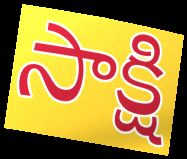
సాక్షి